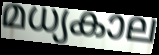
മധ്യകാല